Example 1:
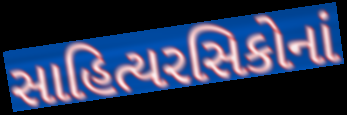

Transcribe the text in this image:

સાહિત્યરસિકોનાં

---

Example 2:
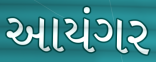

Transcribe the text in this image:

આયંગર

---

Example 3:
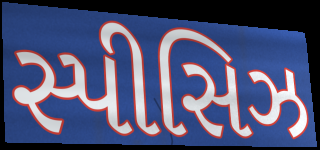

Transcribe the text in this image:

સ્પીસિઝ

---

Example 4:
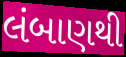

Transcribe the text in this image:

લંબાણથી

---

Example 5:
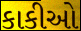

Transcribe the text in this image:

કાકીઓ